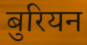
बुरियन